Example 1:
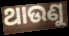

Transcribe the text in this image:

ଥାଉଣୁ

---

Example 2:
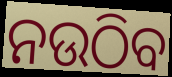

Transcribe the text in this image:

ନଉଠିବ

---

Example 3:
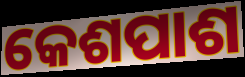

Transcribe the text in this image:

କେଶପାଶ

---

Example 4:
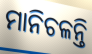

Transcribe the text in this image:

ମାନିଚଳନ୍ତି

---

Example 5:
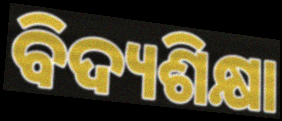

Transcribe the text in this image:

ବିଦ୍ୟଶିକ୍ଷା